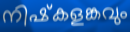
നിഷ്‌കളങ്കവും